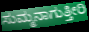
ಸುಮ್ಮನಾಗುತ್ತೀರಿ